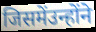
जिसमेंउन्होंने